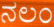
ನಲಂ